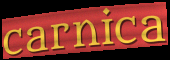
carnica